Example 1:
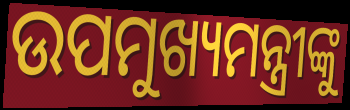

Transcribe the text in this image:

ଉପମୁଖ୍ୟମନ୍ତ୍ରୀଙ୍କୁ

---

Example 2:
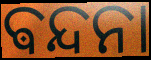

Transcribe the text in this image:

ଵନ୍ଦନା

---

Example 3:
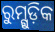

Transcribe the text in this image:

ରୁମ୍ଗୁଡ଼ିକ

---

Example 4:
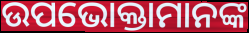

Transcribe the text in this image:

ଉପଭୋକ୍ତାମାନଙ୍କ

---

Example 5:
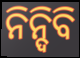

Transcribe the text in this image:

ନିନ୍ଦିବି